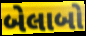
બેલાબો